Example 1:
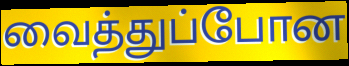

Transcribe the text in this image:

வைத்துப்போன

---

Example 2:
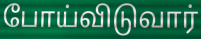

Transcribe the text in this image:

போய்விடுவார்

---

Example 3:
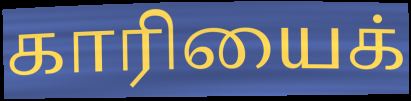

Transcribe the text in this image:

காரியைக்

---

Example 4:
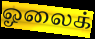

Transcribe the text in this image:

ஓலைக்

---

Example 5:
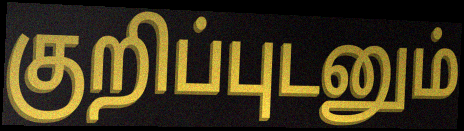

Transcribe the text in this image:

குறிப்புடனும்